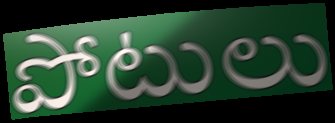
పోటులు